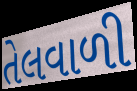
તેલવાળી